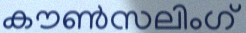
കൗൺസലിംഗ്